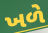
ખળે